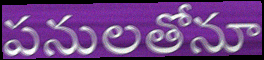
పనులతోనూ